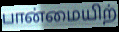
பான்மையிற்